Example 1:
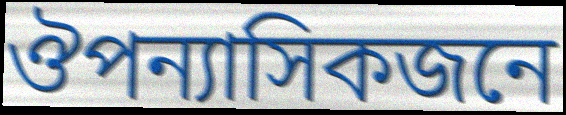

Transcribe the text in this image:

ঔপন্যাসিকজনে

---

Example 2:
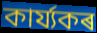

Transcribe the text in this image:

কাৰ্য্যকৰ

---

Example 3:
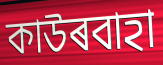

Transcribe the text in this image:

কাউৰবাহা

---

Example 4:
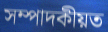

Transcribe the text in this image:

সম্পাদকীয়ত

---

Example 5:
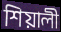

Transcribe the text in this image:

শিয়ালী